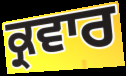
ਕ੍ਰਵਾਰ